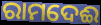
ରାମଦେଈ